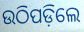
ଉଠିପଡ଼ିଲେ